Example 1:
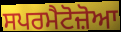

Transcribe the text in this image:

ਸਪਰਮੈਟੋਜ਼ੋਆ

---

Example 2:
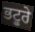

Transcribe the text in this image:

ਭਟੂਰੇ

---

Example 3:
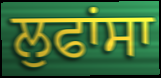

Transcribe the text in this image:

ਲੁਫਾਂਸਾ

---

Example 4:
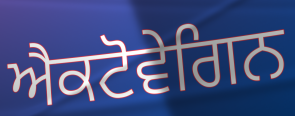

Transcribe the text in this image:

ਐਕਟੋਵੇਗਿਨ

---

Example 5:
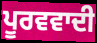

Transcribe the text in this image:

ਪੂਰਵਵਾਦੀ